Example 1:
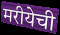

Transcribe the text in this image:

मरीयेची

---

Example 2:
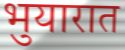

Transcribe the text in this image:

भुयारात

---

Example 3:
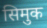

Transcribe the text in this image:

सिमुक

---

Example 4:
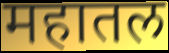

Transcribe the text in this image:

महातल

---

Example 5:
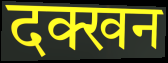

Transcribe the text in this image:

दक्खन